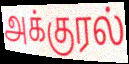
அக்குரல்